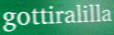
gottiralilla